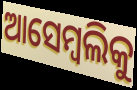
ଆସେମ୍ବଲିକୁ